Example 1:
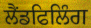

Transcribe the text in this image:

ਲੈਂਡਫਿਲਿੰਗ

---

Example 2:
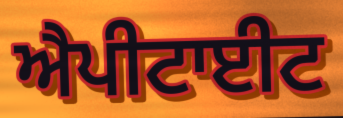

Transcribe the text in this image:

ਐਪੀਟਾਈਟ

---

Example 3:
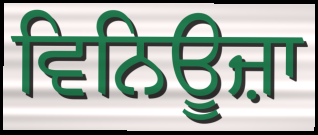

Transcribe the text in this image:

ਵਿਨਿਊਜ਼ਾ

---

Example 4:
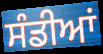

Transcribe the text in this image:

ਸੰਡੀਆਂ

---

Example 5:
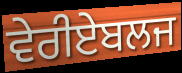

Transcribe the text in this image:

ਵੇਰੀਏਬਲਜ